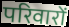
परिवारों